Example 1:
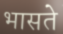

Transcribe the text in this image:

भासते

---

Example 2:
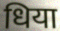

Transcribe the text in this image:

धिया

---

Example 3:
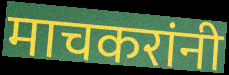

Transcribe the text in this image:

माचकरांनी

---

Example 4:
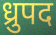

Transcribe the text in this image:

ध्रुपद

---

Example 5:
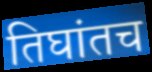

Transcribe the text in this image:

तिघांतच